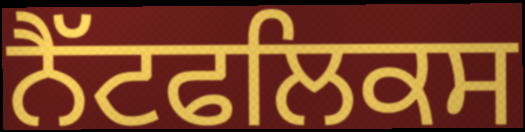
ਨੈੱਟਫਲਿਕਸ